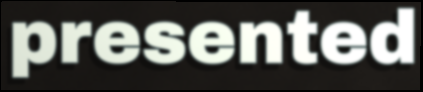
presented